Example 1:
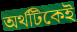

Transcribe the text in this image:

অর্থটিকেই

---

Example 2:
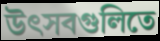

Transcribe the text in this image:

উৎসবগুলিতে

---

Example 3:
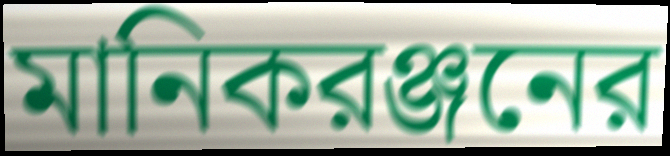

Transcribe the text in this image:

মানিকরঞ্জনের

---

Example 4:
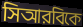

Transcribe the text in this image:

সিআরবিকে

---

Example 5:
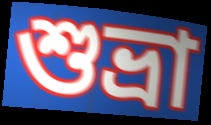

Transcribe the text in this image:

শুভ্রা